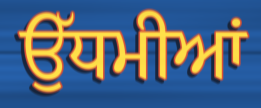
ਉੱਧਮੀਆਂ